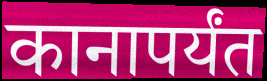
कानापर्यंत